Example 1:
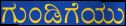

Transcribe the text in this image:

ಗುಂಡಿಗೆಯು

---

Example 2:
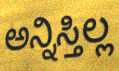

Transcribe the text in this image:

ಅನ್ನಿಸ್ತಿಲ್ಲ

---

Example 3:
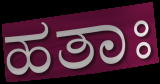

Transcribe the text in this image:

ಹತಾಃ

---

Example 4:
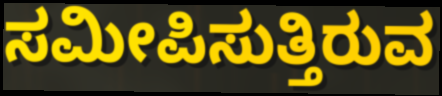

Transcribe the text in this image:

ಸಮೀಪಿಸುತ್ತಿರುವ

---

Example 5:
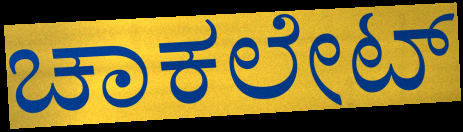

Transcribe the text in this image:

ಚಾಕಲೇಟ್